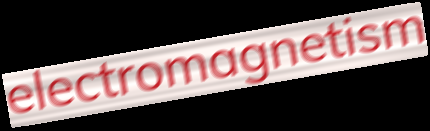
electromagnetism